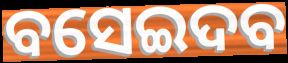
ବସେଇଦବ